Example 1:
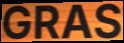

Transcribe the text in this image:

GRAS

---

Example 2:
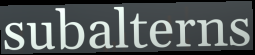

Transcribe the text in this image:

subalterns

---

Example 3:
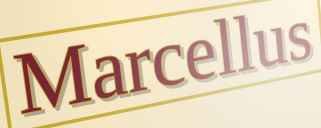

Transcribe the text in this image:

Marcellus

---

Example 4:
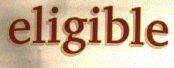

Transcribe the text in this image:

eligible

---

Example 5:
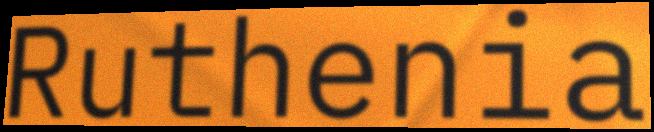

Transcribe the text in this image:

Ruthenia